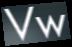
Vw